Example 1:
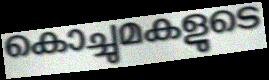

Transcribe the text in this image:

കൊച്ചുമകളുടെ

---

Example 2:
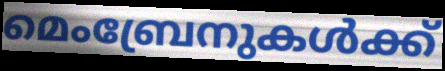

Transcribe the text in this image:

മെംബ്രേനുകൾക്ക്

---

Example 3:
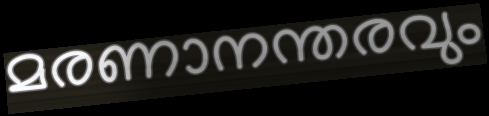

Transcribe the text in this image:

മരണാനന്തരവും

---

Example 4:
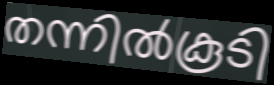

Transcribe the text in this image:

തന്നിൽകൂടി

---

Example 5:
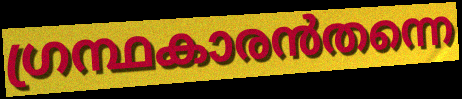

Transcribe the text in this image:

ഗ്രന്ഥകാരൻതന്നെ